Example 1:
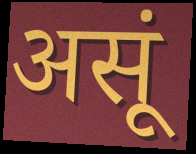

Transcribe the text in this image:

असूं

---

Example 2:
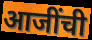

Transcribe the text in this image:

आजींची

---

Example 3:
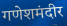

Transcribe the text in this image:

गणेशमंदीर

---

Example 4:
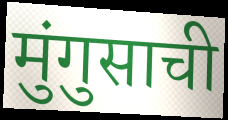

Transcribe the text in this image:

मुंगुसाची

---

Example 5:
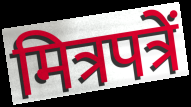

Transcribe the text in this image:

मित्रपत्रें